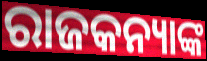
ରାଜକନ୍ୟାଙ୍କ